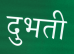
दुभती